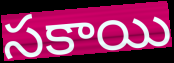
సకాయి